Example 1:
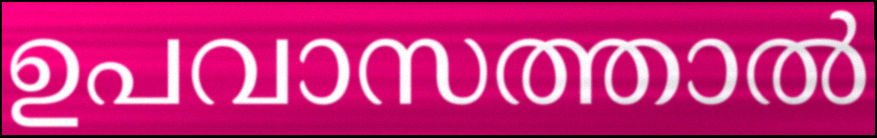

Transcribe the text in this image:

ഉപവാസത്താൽ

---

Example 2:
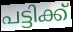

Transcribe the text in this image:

പട്ടിക്ക്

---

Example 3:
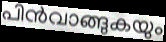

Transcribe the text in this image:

പിൻവാങ്ങുകയും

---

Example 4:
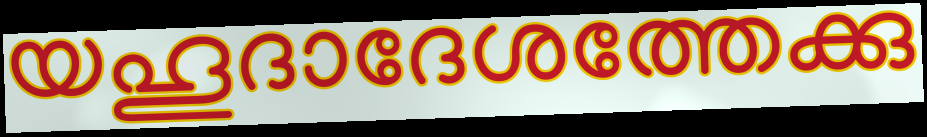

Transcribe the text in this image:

യഹൂദാദേശത്തേക്കു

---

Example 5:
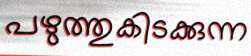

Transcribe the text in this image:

പഴുത്തുകിടക്കുന്ന